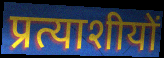
प्रत्याशीयों